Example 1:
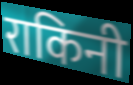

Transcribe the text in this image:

राकिनी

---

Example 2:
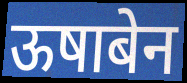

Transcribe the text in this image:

ऊषाबेन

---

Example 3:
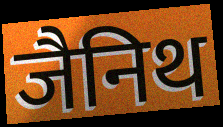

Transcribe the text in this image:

जैनिथ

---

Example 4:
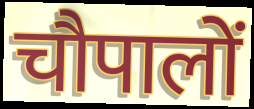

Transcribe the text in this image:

चौपालों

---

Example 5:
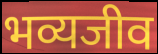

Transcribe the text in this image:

भव्यजीव